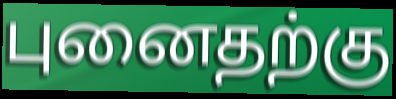
புனைதற்கு